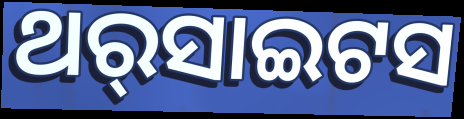
ଥର୍‌ସାଇଟସ